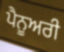
ਪੈਨੂਅਰੀ